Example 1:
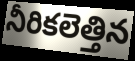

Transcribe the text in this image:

నీరికలెత్తిన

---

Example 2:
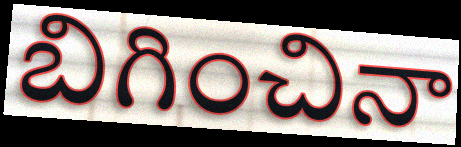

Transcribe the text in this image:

బిగించినా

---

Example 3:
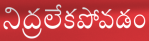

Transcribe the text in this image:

నిద్రలేకపోవడం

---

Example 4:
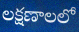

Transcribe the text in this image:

లక్షణాలలో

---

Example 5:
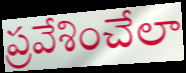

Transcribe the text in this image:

ప్రవేశించేలా